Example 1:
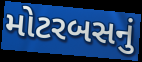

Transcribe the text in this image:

મોટરબસનું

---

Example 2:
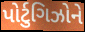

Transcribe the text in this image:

પોર્ટુગિઝોને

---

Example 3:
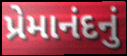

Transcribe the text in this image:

પ્રેમાનંદનું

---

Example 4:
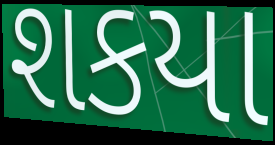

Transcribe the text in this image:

શકયા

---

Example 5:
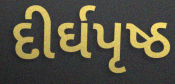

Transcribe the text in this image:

દીર્ઘપૃષ્ઠ